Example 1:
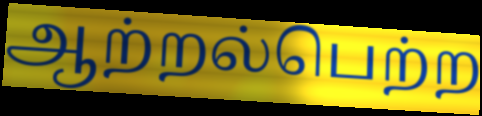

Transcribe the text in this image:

ஆற்றல்பெற்ற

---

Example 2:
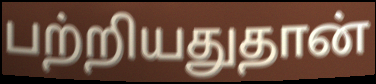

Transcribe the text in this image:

பற்றியதுதான்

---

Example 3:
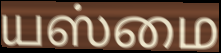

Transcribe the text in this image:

யஸ்மை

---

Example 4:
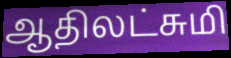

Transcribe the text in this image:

ஆதிலட்சுமி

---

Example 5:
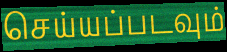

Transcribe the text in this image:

செய்யப்படவும்